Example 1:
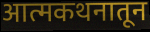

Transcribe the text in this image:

आत्मकथनातून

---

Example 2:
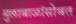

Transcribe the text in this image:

मुलाबाळांसोबत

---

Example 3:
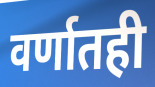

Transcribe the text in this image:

वर्णातही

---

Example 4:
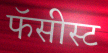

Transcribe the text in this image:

फॅसीस्ट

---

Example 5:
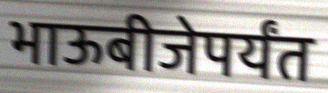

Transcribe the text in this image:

भाऊबीजेपर्यंत